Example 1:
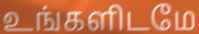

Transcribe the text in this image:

உங்களிடமே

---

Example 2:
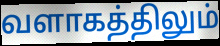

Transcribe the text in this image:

வளாகத்திலும்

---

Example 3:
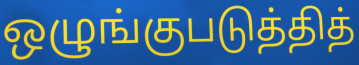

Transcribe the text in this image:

ஒழுங்குபடுத்தித்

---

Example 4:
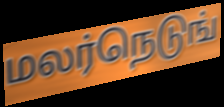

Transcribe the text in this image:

மலர்நெடுங்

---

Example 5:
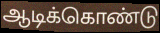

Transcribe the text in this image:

ஆடிக்கொண்டு